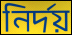
নির্দয়